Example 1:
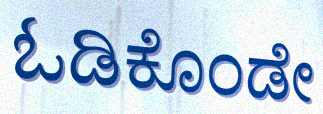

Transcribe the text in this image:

ಓಡಿಕೊಂಡೇ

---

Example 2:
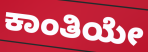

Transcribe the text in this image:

ಕಾಂತಿಯೇ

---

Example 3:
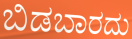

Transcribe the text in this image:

ಬಿಡಬಾರದು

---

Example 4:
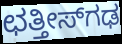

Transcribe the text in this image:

ಛತ್ತೀಸ್‍ಗಢ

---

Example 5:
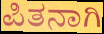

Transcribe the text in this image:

ಪಿತನಾಗಿ